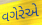
વગેરેએ